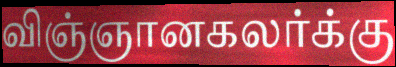
விஞ்ஞானகலர்க்கு